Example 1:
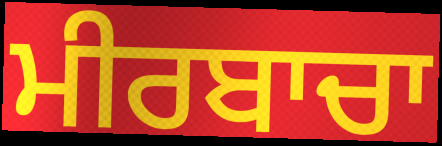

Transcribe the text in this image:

ਮੀਰਬਾਚਾ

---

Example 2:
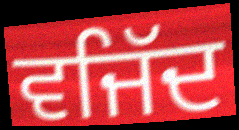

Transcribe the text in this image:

ਵਜਿੱਦ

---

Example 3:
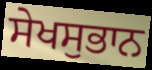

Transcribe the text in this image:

ਸੇਖਸੁਭਾਨ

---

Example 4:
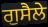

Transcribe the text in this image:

ਗੁਸੈਲੇ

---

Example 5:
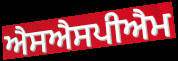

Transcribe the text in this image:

ਐਸਐਸਪੀਐਮ